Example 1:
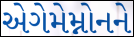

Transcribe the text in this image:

એગેમેમ્નોનને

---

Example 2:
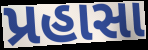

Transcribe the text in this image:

પ્રહાસા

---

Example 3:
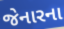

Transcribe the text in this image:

જેનારના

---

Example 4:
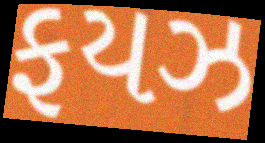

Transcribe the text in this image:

ફયઝ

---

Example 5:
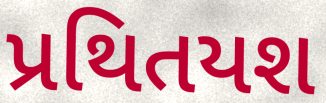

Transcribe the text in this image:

પ્રથિતયશ